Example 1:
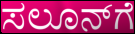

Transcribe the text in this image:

ಸಲೂನ್‍ಗೆ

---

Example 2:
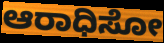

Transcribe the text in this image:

ಆರಾಧಿಸೋ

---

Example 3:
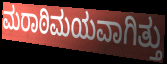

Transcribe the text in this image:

ಮರಾಠಿಮಯವಾಗಿತ್ತು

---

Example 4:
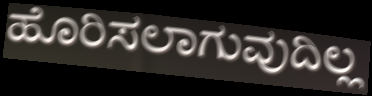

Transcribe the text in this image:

ಹೊರಿಸಲಾಗುವುದಿಲ್ಲ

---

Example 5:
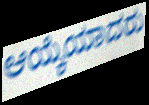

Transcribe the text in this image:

ಆಯ್ಕೆಯಾದರು